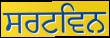
ਸਰਟਵਿਨ